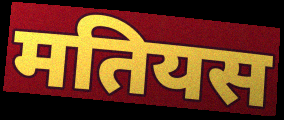
मतियस